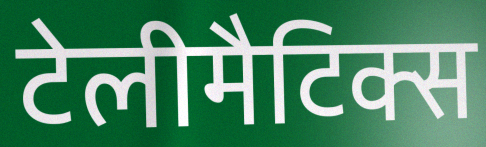
टेलीमैटिक्स